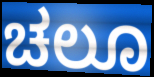
ಚಲೂ